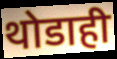
थोडाही